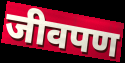
जीवपण